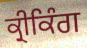
ਕ੍ਰੀਕਿੰਗ